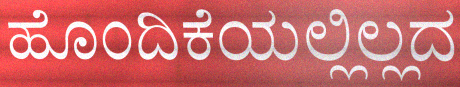
ಹೊಂದಿಕೆಯಲ್ಲಿಲ್ಲದ